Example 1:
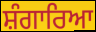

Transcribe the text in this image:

ਸ਼ੰਗਾਰਿਆ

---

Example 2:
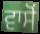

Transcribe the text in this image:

ਵਾਸੋਂ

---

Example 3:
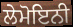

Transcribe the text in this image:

ਲੇਮੋਇਨੀ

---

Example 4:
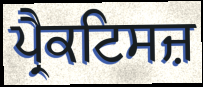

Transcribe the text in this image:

ਪ੍ਰੈਕਟਿਸਜ਼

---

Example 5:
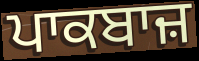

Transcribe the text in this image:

ਪਾਕਬਾਜ਼